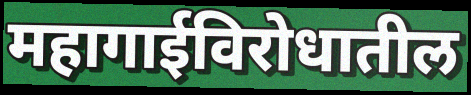
महागाईविरोधातील